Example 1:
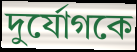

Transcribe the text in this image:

দুর্যোগকে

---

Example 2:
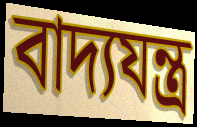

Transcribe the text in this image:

বাদ্যযন্ত্র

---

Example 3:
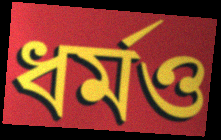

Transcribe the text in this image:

ধর্মও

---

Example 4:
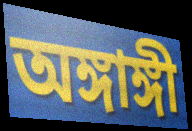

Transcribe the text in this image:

অঙ্গাঙ্গী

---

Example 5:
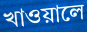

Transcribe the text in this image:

খাওয়ালে